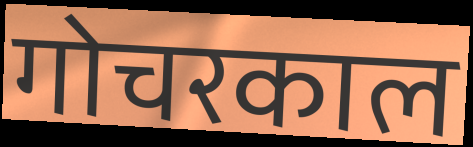
गोचरकाल